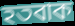
হতবাক